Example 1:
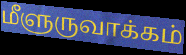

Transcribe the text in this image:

மீளுருவாக்கம்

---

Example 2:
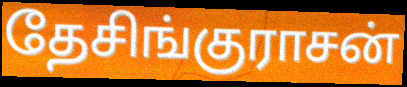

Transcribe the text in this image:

தேசிங்குராசன்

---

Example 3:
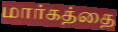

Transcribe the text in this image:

மார்கத்தை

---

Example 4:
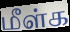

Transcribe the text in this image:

மீள்க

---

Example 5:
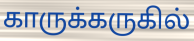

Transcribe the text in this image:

காருக்கருகில்